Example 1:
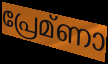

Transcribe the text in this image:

പ്രേമ്ണാ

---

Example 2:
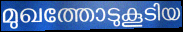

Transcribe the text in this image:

മുഖത്തോടുകൂടിയ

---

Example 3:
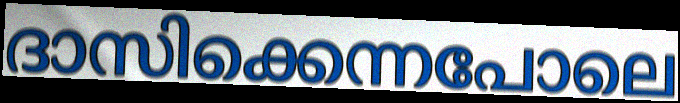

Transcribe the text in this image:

ദാസിക്കെന്നപോലെ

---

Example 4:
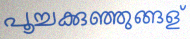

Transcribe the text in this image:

പൂച്ചക്കുഞ്ഞുങ്ങള്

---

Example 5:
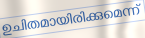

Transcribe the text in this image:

ഉചിതമായിരിക്കുമെന്ന്